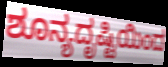
ಶೂನ್ಯದೃಷ್ಟಿಯಿಂದ